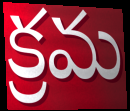
క్రమ